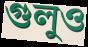
গুলুও